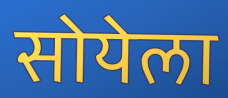
सोयेला